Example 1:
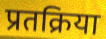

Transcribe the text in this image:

प्रतक्रिया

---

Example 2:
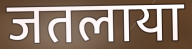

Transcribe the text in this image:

जतलाया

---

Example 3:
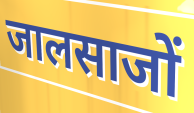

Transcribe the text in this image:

जालसाजों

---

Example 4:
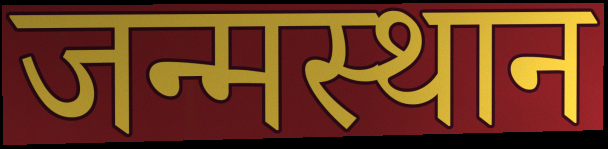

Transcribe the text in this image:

जन्मस्थान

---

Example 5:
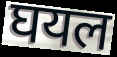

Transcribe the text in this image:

घयल